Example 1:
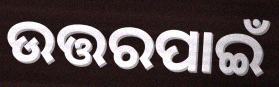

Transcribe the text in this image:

ଉତ୍ତରପାଇଁ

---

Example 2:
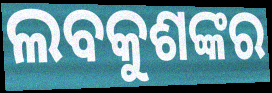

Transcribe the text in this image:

ଲବକୁଶଙ୍କର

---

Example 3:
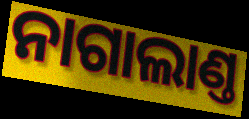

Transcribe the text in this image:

ନାଗାଲାଣ୍ତ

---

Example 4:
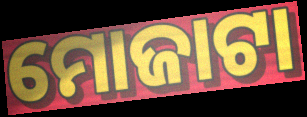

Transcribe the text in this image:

ମୋଜାଟା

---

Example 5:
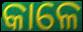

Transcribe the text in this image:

କାଳେ